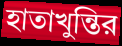
হাতাখুন্তির